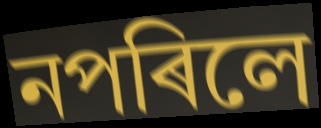
নপৰিলে